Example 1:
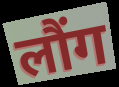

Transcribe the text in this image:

लौंग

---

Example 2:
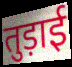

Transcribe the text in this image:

तुड़ाई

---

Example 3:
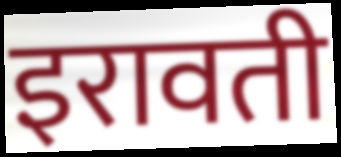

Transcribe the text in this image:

इरावती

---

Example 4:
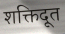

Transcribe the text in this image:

शक्तिदूत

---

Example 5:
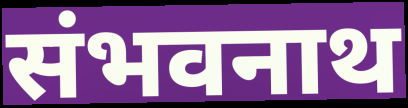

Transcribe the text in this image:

संभवनाथ